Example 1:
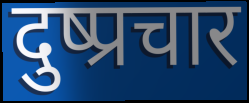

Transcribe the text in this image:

दुष्प्रचार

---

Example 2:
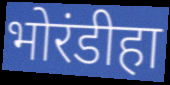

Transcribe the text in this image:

भोरंडीहा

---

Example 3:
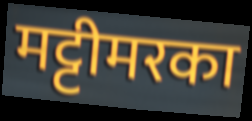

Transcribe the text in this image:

मट्टीमरका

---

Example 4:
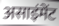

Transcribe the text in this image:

असाइंमेंट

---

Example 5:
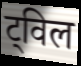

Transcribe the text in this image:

ट्विल